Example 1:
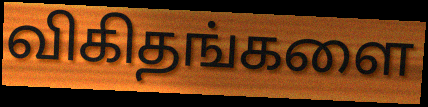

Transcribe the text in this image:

விகிதங்களை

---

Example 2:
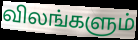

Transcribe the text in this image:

விலங்களும்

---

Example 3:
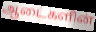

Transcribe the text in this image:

ஆடைகளின்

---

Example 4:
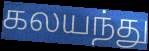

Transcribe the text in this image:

கலயந்து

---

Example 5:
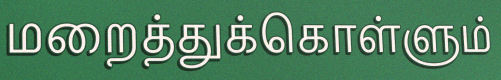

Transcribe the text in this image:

மறைத்துக்கொள்ளும்